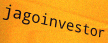
jagoinvestor